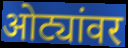
ओट्यांवर